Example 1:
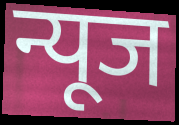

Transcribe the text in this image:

न्यूज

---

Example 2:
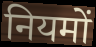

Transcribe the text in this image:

नियमों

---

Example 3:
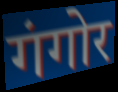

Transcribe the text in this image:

गंगोर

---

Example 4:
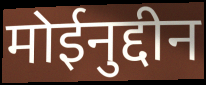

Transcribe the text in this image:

मोईनुद्दीन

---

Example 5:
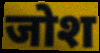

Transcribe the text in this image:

जोश